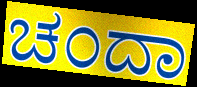
ಚಂದಾ